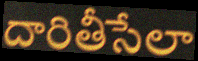
దారితీసేలా